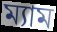
ম্যাম